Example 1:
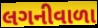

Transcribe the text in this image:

લગનીવાળા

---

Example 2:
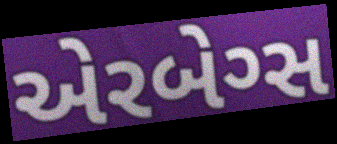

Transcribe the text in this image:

એરબેગ્સ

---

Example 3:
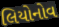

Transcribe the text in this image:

લિયોનોવ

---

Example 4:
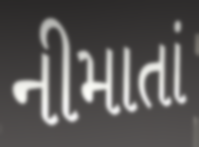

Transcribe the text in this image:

નીમાતાં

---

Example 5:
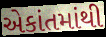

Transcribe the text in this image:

એકાંતમાંથી